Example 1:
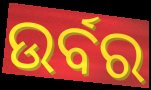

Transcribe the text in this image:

ଉର୍ବର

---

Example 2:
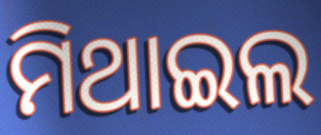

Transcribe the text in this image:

ମିଥାଇଲ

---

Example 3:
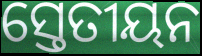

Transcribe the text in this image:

ସ୍ତେତୀୟନ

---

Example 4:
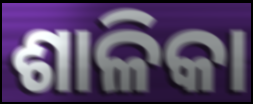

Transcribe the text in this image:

ଶାଳିକା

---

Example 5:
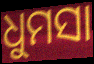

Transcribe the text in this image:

ଧୁମସା